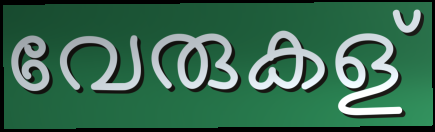
വേരുകള്